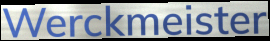
Werckmeister